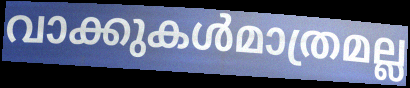
വാക്കുകൾമാത്രമല്ല